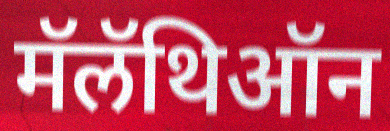
मॅलॅथिऑन